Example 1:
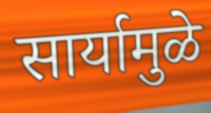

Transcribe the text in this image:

सार्यामुळे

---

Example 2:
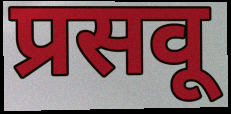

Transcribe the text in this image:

प्रसवू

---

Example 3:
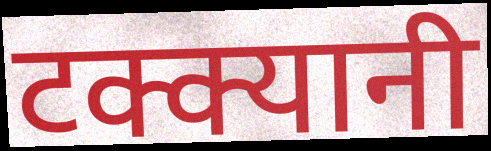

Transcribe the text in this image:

टक्क्यानी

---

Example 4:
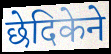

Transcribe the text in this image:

छेदिकेने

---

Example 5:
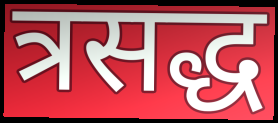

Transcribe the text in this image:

त्रसद्ध